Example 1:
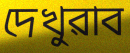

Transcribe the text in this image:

দেখুৱাব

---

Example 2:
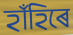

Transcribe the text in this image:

হাঁহিৰে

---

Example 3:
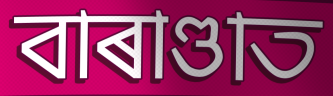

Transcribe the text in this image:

বাৰাণ্ডাত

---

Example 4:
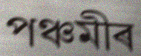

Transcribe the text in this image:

পঞ্চমীৰ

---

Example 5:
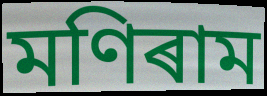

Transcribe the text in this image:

মণিৰাম